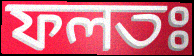
ফলতঃ